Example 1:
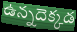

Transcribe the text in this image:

ఉన్నదెక్కడ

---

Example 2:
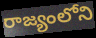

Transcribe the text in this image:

రాజ్యంలోని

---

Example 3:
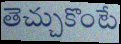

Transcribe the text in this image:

తెచ్చుకొంటే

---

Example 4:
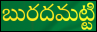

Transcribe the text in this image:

బురదమట్టి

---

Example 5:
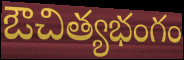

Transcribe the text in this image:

ఔచిత్యభంగం